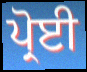
ਪ੍ਰੋਈ